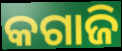
କଗାଜି